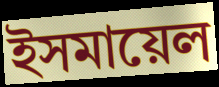
ইসমায়েল